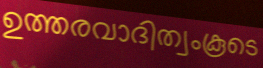
ഉത്തരവാദിത്വംകൂടെ